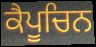
ਕੈਪੂਚਿਨ